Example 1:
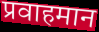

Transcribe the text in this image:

प्रवाहमान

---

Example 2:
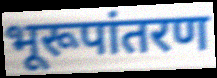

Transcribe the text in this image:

भूरूपांतरण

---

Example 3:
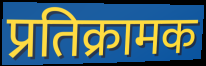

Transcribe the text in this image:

प्रतिक्रामक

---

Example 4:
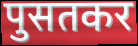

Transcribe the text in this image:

पुसतकर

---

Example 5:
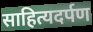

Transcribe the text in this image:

साहित्यदर्पण